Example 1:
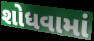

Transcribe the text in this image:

શોધવામાં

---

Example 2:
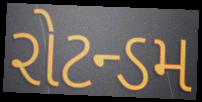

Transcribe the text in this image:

રોટન્ડમ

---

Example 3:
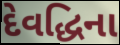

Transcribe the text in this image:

દેવદ્ધિના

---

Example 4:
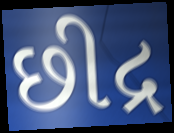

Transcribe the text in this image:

છીદ્ર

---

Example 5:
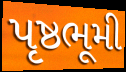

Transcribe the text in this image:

પૃષ્ઠભૂમી